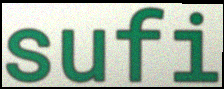
sufi